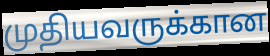
முதியவருக்கான